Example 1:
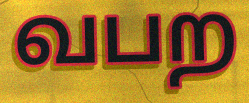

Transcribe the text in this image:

வபற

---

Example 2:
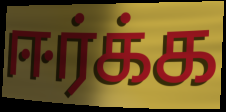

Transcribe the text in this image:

ஈர்க்க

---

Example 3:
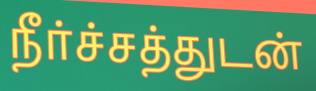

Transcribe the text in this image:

நீர்ச்சத்துடன்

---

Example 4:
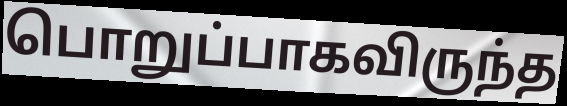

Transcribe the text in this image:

பொறுப்பாகவிருந்த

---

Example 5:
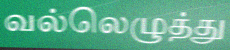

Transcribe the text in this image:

வல்லெழுத்து